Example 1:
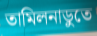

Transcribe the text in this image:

তামিলনাডুতে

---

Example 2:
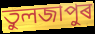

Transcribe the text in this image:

তুলজাপুৰ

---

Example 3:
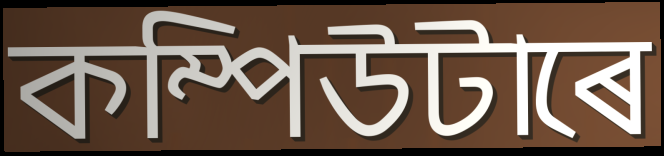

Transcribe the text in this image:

কম্পিউটাৰে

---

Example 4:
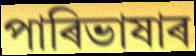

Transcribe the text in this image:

পাৰিভাষাৰ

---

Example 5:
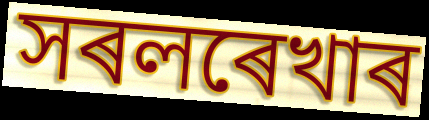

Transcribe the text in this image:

সৰলৰেখাৰ